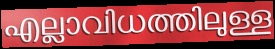
എല്ലാവിധത്തിലുള്ള